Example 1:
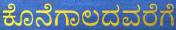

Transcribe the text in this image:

ಕೊನೆಗಾಲದವರೆಗೆ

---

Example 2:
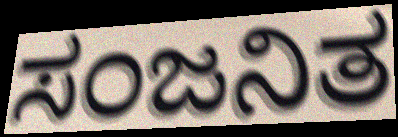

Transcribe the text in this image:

ಸಂಜನಿತ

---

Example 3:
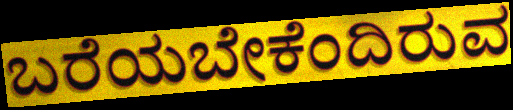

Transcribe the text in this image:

ಬರೆಯಬೇಕೆಂದಿರುವ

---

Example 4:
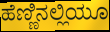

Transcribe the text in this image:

ಹೆಣ್ಣಿನಲ್ಲಿಯೂ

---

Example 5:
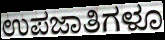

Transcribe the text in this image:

ಉಪಜಾತಿಗಳೂ